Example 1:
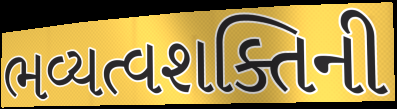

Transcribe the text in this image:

ભવ્યત્વશક્તિની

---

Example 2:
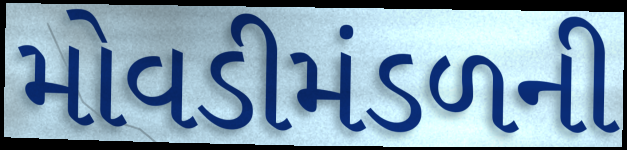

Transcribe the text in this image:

મોવડીમંડળની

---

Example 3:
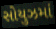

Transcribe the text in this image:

સોયુઝમાં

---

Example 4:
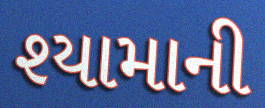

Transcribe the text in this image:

શ્યામાની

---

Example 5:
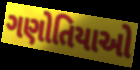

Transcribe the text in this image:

ગણોતિયાઓ